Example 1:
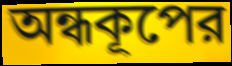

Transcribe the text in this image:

অন্ধকূপের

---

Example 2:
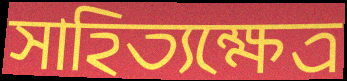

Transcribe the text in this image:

সাহিত্যক্ষেত্র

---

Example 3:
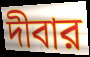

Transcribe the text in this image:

দীবার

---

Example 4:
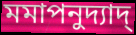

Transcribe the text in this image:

মমাপনুদ্যাদ্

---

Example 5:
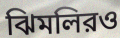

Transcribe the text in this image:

ঝিমলিরও